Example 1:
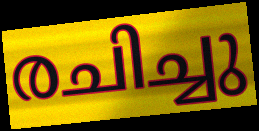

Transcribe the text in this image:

രചിച്ചു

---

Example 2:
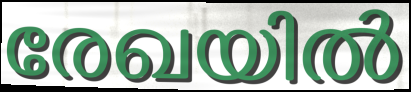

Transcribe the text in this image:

രേഖയിൽ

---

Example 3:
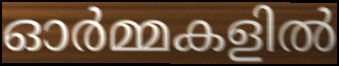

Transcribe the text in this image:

ഓർമ്മകളിൽ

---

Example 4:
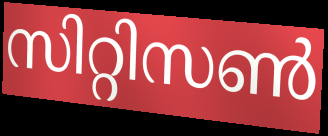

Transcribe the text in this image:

സിറ്റിസൺ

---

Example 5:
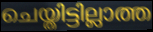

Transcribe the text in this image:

ചെയ്തിട്ടില്ലാത്ത